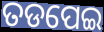
ତଡପେଇ